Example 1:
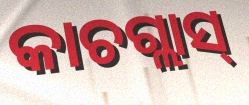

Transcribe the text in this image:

କାଚଗ୍ଲାସ୍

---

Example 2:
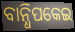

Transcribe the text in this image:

ବାନ୍ଧିପକେଇ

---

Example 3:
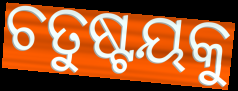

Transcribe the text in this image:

ଚତୁଷ୍ଟୟକୁ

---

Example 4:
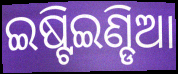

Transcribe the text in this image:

ଇଷ୍ଟିଇଣ୍ଡିଆ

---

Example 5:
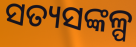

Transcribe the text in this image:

ସତ୍ୟସଙ୍କଳ୍ପ